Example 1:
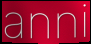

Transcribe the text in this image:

anni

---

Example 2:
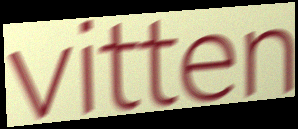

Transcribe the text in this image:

vitten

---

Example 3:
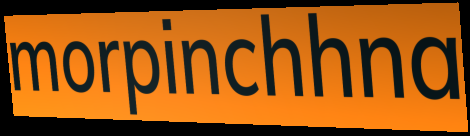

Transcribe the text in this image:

morpinchhna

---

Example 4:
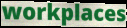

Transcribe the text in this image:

workplaces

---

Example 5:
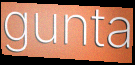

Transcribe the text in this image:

gunta